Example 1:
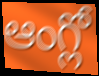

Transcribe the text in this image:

ఆంగ్లో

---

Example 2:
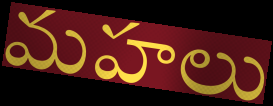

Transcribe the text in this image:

మహలు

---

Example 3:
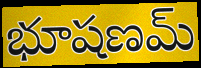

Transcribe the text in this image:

భూషణమ్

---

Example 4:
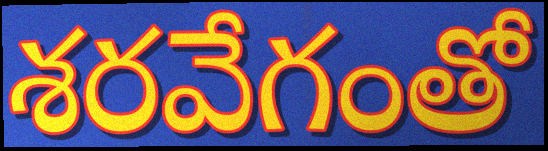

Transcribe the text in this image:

శరవేగంతో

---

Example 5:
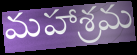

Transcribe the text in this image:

మహాశ్రమ